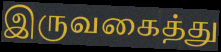
இருவகைத்து